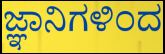
ಜ್ಞಾನಿಗಳಿಂದ